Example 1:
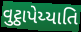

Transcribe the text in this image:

વુટ્ઠાપેય્યાતિ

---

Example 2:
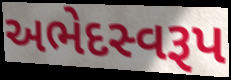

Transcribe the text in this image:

અભેદસ્વરૂપ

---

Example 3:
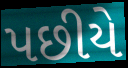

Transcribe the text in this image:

પછીયે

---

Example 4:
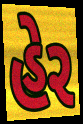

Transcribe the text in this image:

હેર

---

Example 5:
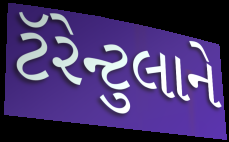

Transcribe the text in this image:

ટૅરેન્ટુલાને